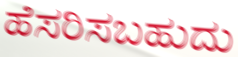
ಹೆಸರಿಸಬಹುದು